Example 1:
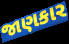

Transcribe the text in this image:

જાણકાર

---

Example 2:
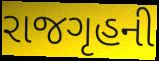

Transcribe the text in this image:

રાજગૃહની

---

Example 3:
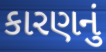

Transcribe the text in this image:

કારણનું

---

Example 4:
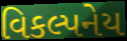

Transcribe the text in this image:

વિકલ્પનેય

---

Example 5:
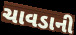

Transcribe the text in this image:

ચાવડાની